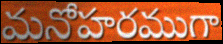
మనోహరముగా